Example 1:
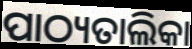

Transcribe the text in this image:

ପାଠ୍ୟତାଲିକା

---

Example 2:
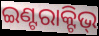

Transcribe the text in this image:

ଇଣ୍ଟରାକ୍ଟିଭ୍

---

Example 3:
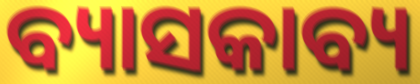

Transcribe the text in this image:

ବ୍ୟାସକାବ୍ୟ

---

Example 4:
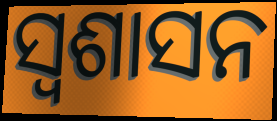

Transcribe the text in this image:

ସ୍ବଶାସନ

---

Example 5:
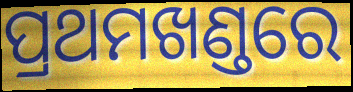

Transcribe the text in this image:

ପ୍ରଥମଖଣ୍ଡରେ